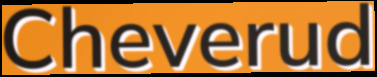
Cheverud